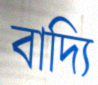
বাদ্যি